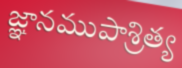
జ్ఞానముపాశ్రిత్య